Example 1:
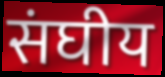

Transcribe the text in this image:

संघीय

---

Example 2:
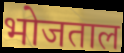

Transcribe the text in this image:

भोजताल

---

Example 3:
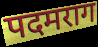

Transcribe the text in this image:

पदमराग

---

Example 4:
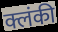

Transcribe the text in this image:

क्लंकी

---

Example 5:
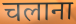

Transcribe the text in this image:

चलाना